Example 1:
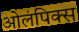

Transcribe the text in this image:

ओलंपिक्‍स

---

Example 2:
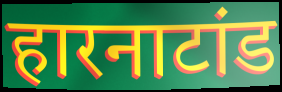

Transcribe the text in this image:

हारनाटांड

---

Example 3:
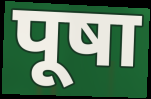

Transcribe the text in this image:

पूषा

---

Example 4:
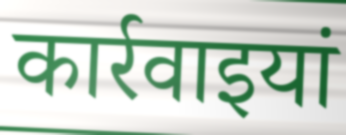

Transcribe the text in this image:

कार्रवाइयां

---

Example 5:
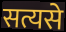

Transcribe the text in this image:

सत्यसे